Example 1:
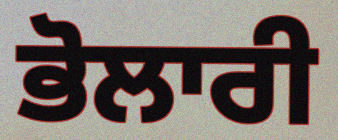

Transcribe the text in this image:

ਭੋਲਾਰੀ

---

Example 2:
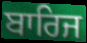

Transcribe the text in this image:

ਬਾਰਿਜ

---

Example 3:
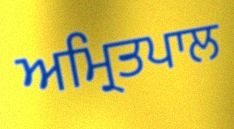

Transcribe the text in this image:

ਅਮ੍ਰਿਤਪਾਲ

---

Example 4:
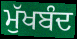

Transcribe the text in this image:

ਮੁੱਖਬੰਦ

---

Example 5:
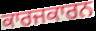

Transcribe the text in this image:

ਕਾਰਜਕਾਰਨ